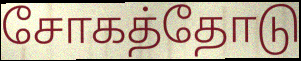
சோகத்தோடு